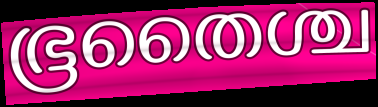
ഭൂതൈശ്ച